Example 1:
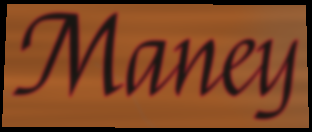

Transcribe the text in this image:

Maney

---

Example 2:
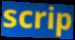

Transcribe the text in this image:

scrip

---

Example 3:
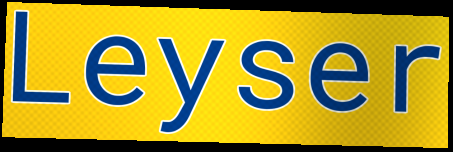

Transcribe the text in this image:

Leyser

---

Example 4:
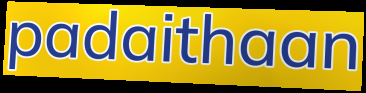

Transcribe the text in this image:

padaithaan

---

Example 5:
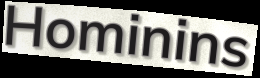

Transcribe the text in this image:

Hominins